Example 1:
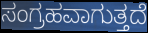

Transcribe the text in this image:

ಸಂಗ್ರಹವಾಗುತ್ತದೆ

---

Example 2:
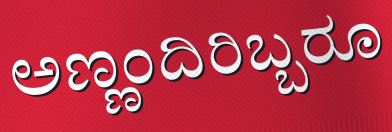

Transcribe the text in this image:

ಅಣ್ಣಂದಿರಿಬ್ಬರೂ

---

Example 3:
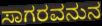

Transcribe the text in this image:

ಸಾಗರವನುನ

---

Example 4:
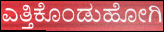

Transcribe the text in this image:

ಎತ್ತಿಕೊಂಡುಹೋಗಿ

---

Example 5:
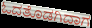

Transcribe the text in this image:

ಓದತೊಡಗಿದಾಗ